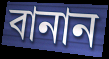
বানান